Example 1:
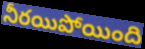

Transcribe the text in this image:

నీరయిపోయింది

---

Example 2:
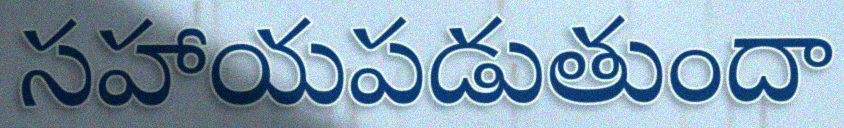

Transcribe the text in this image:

సహాయపడుతుందా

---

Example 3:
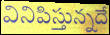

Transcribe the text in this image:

వినిపిస్తున్నదే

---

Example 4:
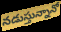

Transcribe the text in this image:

నడుస్తున్నానో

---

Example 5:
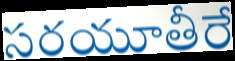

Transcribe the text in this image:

సరయూతీరే